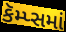
કૅમ્પ્સમાં